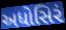
અધોસિરં